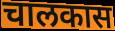
चालकास